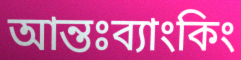
আন্তঃব্যাংকিং